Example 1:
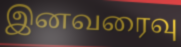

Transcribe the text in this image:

இனவரைவு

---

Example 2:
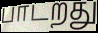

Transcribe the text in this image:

பாடறது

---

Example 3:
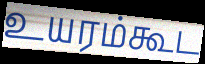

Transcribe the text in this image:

உயரம்கூட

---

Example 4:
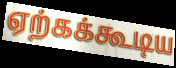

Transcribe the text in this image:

ஏற்கக்கூடிய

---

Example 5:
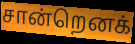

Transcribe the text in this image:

சான்றெனக்